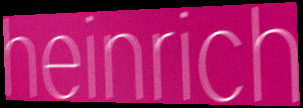
heinrich